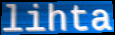
lihta